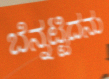
ಬೆನ್ನಟ್ಟಿದನು